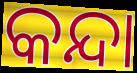
କନ୍ଦା